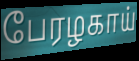
பேரழகாய்